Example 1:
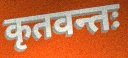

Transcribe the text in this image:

कृतवन्तः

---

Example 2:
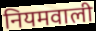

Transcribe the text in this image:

नियमवाली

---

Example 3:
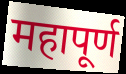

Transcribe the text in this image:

महापूर्ण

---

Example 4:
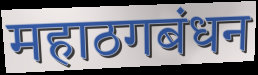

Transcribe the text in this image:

महाठगबंधन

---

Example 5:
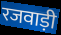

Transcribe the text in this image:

रजवाड़ी